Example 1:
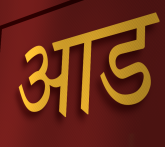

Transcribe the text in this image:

आड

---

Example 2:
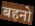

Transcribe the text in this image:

बहनो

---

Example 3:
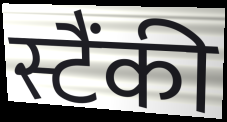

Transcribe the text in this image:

स्टैंकी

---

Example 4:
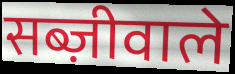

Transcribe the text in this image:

सब्ज़ीवाले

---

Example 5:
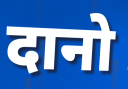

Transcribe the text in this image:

दानो